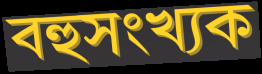
বহুসংখ্যক